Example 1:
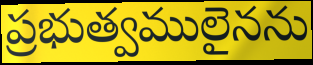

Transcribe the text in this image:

ప్రభుత్వములైనను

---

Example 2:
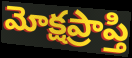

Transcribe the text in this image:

మోక్షప్రాప్తి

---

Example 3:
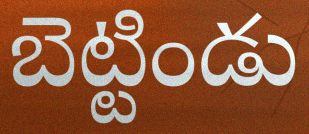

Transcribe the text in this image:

బెట్టిండు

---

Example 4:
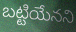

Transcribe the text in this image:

బట్టియేనని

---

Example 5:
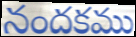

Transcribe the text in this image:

నందకము